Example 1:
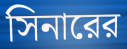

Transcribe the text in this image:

সিনারের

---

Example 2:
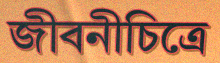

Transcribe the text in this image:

জীবনীচিত্রে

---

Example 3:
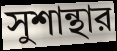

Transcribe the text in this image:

সুশান্থার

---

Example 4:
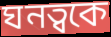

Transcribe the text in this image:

ঘনত্বকে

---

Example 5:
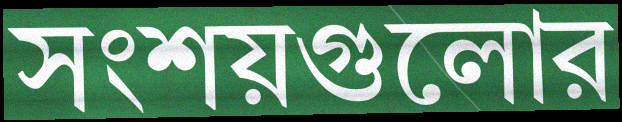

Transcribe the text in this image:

সংশয়গুলোর